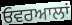
ਓਵਰਆਲਾਂ